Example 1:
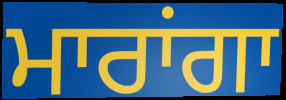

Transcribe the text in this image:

ਮਾਰਾਂਗਾ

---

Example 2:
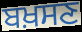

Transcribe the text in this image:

ਬਖ਼ਸਣ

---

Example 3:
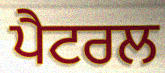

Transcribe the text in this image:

ਪੈਟਰਲ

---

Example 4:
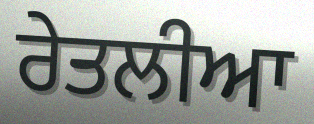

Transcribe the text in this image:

ਰੇਤਲੀਆ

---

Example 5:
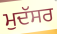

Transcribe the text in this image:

ਮੁਦੱਸਰ